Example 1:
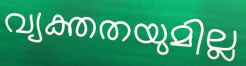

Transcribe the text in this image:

വ്യക്തതയുമില്ല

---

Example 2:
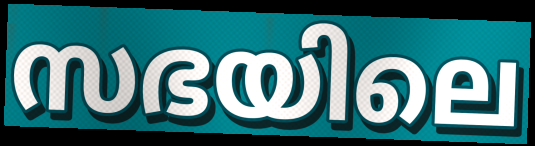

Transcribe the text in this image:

സഭയിലെ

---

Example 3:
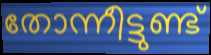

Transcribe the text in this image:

തോന്നീട്ടുണ്ട്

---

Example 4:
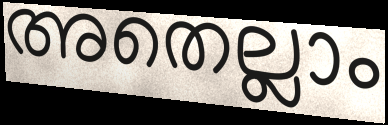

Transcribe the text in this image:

അതെല്ലാം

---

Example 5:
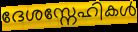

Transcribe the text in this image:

ദേശസ്നേഹികൾ